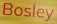
Bosley